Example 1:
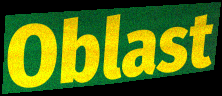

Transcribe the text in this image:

Oblast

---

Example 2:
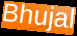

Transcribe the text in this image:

Bhujal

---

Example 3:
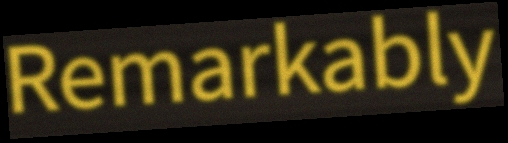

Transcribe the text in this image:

Remarkably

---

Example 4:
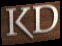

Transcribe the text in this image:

KD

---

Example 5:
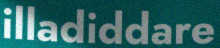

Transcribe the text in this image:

illadiddare